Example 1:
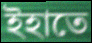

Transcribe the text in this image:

ইহাতে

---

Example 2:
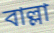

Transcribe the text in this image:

বাল্লা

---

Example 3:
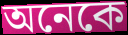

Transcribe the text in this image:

অনেকে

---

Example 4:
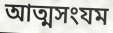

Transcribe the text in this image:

আত্মসংযম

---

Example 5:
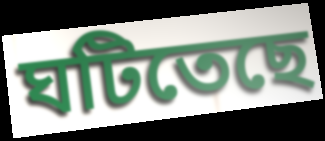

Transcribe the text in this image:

ঘটিতেছে